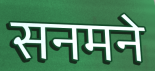
सनमने